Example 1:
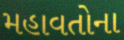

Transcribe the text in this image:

મહાવતોના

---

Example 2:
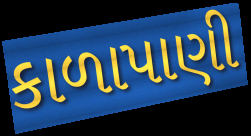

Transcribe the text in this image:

કાળાપાણી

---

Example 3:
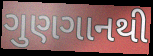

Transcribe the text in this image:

ગુણગાનથી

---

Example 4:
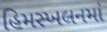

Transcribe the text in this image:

હિમસ્ખલનમાં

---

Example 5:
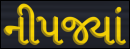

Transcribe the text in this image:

નીપજ્યાં